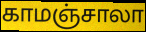
காமஞ்சாலா